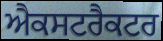
ਐਕਸਟਰੈਕਟਰ